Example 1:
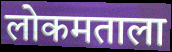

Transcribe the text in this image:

लोकमताला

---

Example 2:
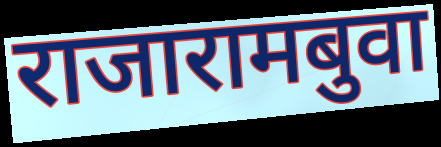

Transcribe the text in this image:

राजारामबुवा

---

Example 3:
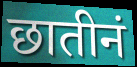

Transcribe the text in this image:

छातीनं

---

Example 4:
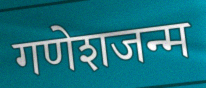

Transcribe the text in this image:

गणेशजन्म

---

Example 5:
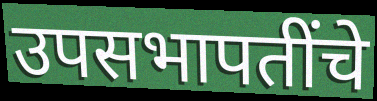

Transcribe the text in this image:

उपसभापतींचे